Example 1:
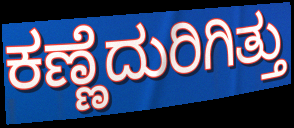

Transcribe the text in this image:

ಕಣ್ಣೆದುರಿಗಿತ್ತು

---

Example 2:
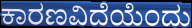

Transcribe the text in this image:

ಕಾರಣವಿದೆಯೆಂದು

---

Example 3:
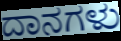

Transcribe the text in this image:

ದಾನಗಳು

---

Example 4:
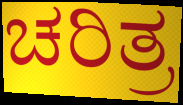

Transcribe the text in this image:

ಚರಿತ್ರ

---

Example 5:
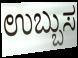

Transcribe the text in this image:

ಉಬ್ಬುಸ